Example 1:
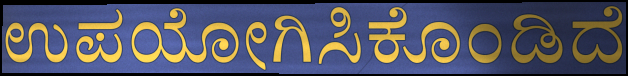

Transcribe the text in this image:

ಉಪಯೋಗಿಸಿಕೊಂಡಿದೆ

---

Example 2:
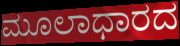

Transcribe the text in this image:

ಮೂಲಾಧಾರದ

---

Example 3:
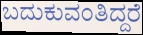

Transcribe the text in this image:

ಬದುಕುವಂತಿದ್ದರೆ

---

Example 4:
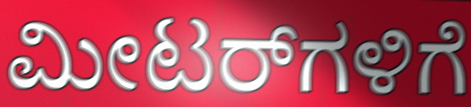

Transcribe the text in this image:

ಮೀಟರ್‌ಗಳಿಗೆ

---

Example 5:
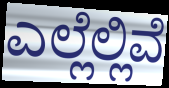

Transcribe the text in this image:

ಎಲ್ಲೆಲ್ಲಿವೆ